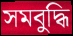
সমবুদ্ধি